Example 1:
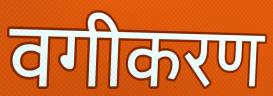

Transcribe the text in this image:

वगीकरण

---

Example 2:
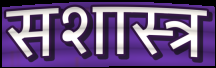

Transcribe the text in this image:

सशास्त्र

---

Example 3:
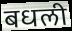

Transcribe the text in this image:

बधली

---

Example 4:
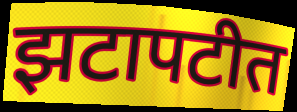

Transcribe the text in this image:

झटापटीत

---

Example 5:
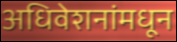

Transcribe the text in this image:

अधिवेशनांमधून